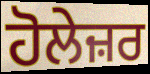
ਹੋਲੇਜ਼ਰ